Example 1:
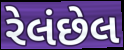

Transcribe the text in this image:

રેલંછેલ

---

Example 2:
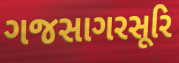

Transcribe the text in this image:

ગજસાગરસૂરિ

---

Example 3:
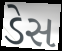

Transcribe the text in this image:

ડેસ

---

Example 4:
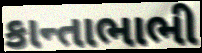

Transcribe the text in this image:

કાન્તાભાભી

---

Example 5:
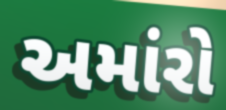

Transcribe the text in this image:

અમાંરો